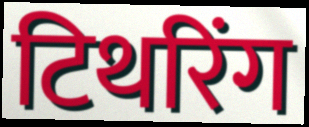
टिथरिंग